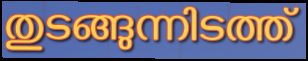
തുടങ്ങുന്നിടത്ത്